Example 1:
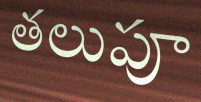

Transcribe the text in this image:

తలుపూ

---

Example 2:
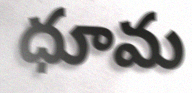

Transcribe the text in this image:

ధూమ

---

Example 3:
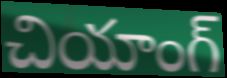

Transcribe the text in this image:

చియాంగ్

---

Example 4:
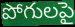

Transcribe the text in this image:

పోగులపై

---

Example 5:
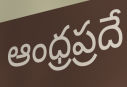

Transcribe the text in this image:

ఆంధ్రప్రదే